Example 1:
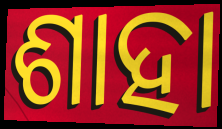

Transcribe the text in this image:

ଶାହା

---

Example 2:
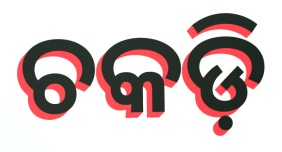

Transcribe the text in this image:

ଚକଡ଼ି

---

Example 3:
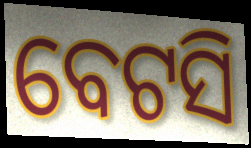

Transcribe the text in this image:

ବେଟସି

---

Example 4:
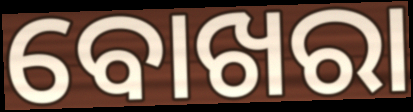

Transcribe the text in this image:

ବୋଖରା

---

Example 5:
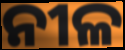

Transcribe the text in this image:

ନୀଳ